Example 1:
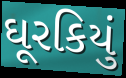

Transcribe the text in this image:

ઘૂરકિયું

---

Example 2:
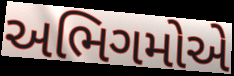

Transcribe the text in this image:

અભિગમોએ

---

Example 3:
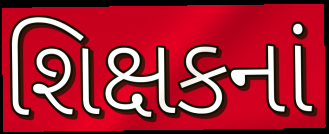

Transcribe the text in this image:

શિક્ષકનાં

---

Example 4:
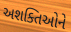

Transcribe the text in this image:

અશક્તિઓને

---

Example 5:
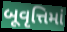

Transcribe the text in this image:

બૂવૃત્તિમાં